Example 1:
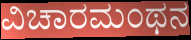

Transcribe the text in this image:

ವಿಚಾರಮಂಥನ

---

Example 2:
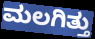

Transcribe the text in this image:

ಮಲಗಿತ್ತು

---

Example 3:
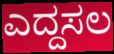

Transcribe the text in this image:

ಎದ್ದಸಲ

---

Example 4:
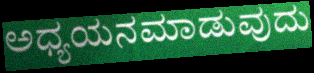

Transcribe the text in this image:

ಅಧ್ಯಯನಮಾಡುವುದು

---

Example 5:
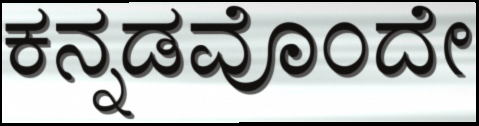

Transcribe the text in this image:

ಕನ್ನಡವೊಂದೇ